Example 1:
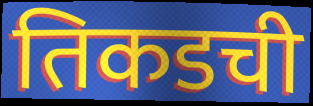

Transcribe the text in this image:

तिकडची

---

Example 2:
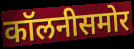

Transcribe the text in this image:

कॉलनीसमोर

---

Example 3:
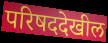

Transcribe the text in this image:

परिषददेखील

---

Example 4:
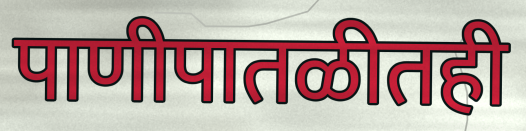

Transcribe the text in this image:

पाणीपातळीतही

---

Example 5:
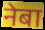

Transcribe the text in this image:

नेबा